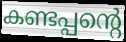
കണ്ടപ്പന്റെ